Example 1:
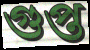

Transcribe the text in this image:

গুপ্ত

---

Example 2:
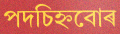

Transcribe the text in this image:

পদচিহ্নবোৰ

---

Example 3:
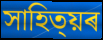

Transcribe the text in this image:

সাহিত্য়ৰ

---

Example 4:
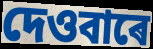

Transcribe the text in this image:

দেওবাৰে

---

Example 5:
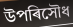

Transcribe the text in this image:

উপৰিসৌধ